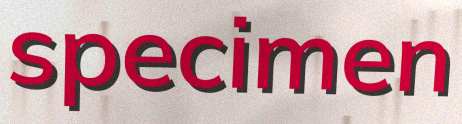
specimen